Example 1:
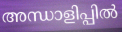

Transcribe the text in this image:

അന്ധാളിപ്പിൽ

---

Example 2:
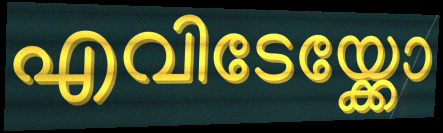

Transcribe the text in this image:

എവിടേയ്ക്കോ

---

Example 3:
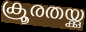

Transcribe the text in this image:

ക്രൂരതയ്ക്കു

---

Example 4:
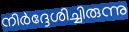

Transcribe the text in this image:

നിർദ്ദേശിച്ചിരുന്നു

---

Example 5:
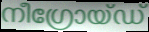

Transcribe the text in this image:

നീഗ്രോയ്ഡ്